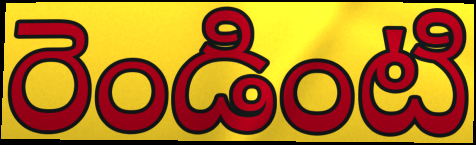
రెండింటి